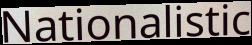
Nationalistic